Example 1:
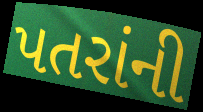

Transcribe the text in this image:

પતરાંની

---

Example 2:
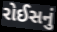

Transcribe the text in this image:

રોઈસનું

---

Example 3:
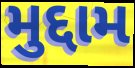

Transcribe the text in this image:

મુદ્દામ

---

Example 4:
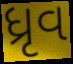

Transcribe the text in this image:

ધ્રૃવ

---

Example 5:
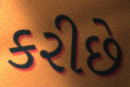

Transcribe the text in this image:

કરીછે